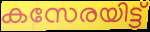
കസേരയിട്ട്